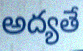
అద్యతే